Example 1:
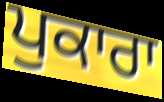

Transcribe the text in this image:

ਪੁਕਾਰਾ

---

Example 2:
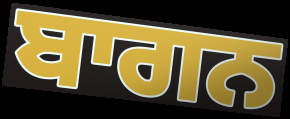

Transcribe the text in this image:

ਬਾਗਨ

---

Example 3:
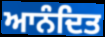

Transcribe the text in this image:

ਆਨੰਦਿਤ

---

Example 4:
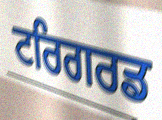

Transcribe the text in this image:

ਟਰਿਗਰਡ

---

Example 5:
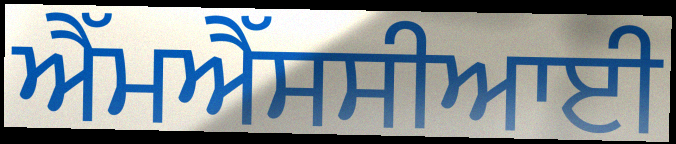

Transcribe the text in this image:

ਐੱਮਐੱਸਸੀਆਈ